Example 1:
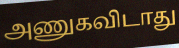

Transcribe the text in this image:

அணுகவிடாது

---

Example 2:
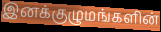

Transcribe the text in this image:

இனக்குழுமங்களின்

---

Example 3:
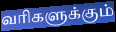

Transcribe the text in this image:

வரிகளுக்கும்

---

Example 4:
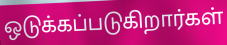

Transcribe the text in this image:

ஒடுக்கப்படுகிறார்கள்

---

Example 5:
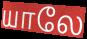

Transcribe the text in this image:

யாலே